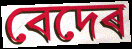
বেদেৰ